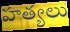
హత్యలు